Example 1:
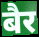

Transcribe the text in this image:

बैर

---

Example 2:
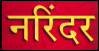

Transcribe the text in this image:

नरिंदर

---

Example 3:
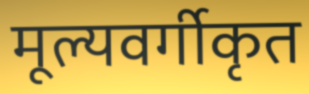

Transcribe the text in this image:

मूल्यवर्गीकृत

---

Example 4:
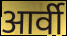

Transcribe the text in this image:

आर्वी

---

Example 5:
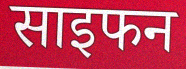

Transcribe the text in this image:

साइफन